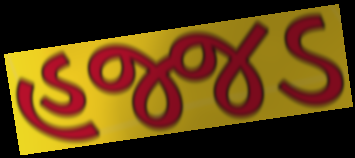
હજ્જડ